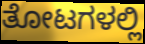
ತೋಟಗಳಲ್ಲಿ